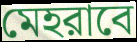
মেহরাবে